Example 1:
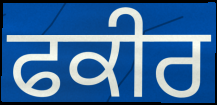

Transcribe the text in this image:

ਫਕੀਰ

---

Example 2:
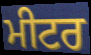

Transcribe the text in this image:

ਮੀਟਰ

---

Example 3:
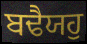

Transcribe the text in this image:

ਬਢੈਯਹੁ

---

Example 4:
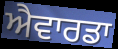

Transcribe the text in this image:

ਐਵਾਰਡਾ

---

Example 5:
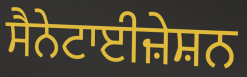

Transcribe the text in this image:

ਸੈਨੇਟਾਈਜ਼ੇਸ਼ਨ